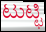
ಟುಟ್ಟಿ